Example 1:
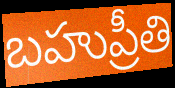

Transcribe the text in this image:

బహుప్రీతి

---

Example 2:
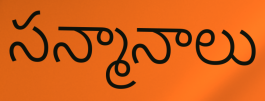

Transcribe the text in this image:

సన్మానాలు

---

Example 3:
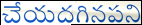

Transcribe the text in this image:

చేయదగినపని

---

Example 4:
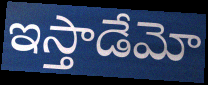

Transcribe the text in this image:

ఇస్తాడేమో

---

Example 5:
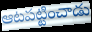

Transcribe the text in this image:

ఆటపట్టించాడు